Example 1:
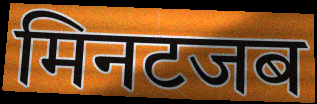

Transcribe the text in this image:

मिनटजब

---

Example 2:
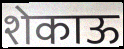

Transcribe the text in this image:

शेकाऊ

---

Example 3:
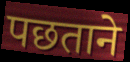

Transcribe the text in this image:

पछताने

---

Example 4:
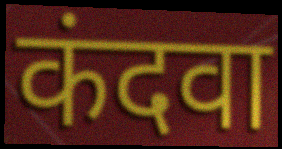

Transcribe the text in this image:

कंदवा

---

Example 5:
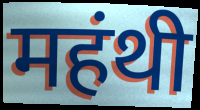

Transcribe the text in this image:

महंथी